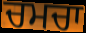
ਚਮਚਾ